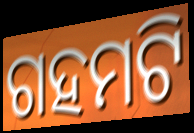
ଗହମଟି